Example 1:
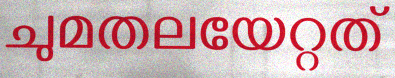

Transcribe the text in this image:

ചുമതലയേറ്റത്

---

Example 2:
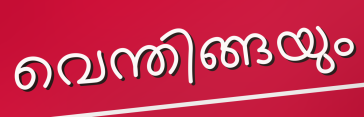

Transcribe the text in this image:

വെന്തിങ്ങയും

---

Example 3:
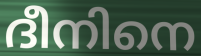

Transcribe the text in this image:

ദീനിനെ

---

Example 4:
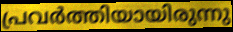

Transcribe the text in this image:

പ്രവർത്തിയായിരുന്നു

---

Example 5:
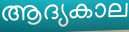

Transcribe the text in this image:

ആദ്യകാല